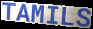
TAMILS